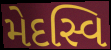
મેદસ્વિ